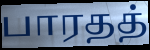
பாரதத்